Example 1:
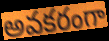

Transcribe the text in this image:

అవకరంగా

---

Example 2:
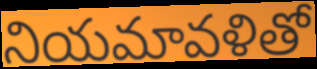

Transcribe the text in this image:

నియమావళితో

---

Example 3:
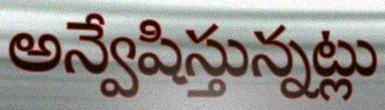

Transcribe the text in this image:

అన్వేషిస్తున్నట్లు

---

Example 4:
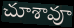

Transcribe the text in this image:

చూశావూ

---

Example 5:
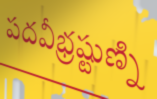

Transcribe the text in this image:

పదవీభ్రష్టుణ్ని